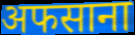
अफसाना